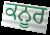
ਕਨੂਰ